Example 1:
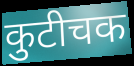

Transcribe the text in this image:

कुटीचक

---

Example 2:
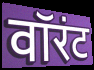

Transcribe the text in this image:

वॉरंट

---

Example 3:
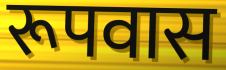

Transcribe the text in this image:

रूपवास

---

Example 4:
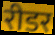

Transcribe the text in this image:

रीडर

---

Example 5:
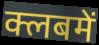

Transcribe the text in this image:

क्लबमें